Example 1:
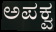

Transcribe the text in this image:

ಅಪಕ್ವ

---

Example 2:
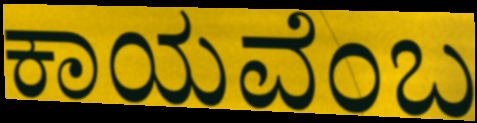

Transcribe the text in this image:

ಕಾಯವೆಂಬ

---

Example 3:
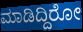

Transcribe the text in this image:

ಮಾಡಿದ್ದಿರೋ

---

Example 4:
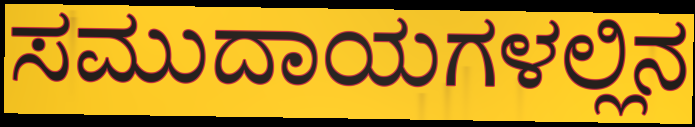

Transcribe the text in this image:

ಸಮುದಾಯಗಳಲ್ಲಿನ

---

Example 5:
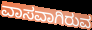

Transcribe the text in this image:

ವಾಸವಾಗಿರುವ